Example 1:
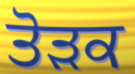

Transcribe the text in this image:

ਤੋੜਕ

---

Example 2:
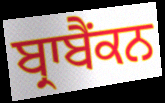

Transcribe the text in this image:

ਬ੍ਰਾਬੈਂਕਨ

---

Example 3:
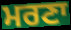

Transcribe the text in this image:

ਮਰਣਾ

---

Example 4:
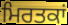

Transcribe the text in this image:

ਮਿਰਤਕਾਂ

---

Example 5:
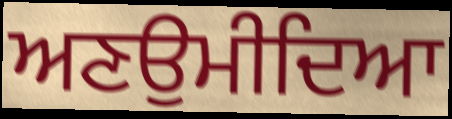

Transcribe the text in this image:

ਅਣਉਮੀਦਿਆ